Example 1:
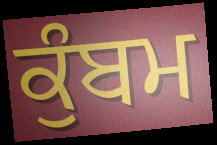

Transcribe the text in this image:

ਕੁੰਬਮ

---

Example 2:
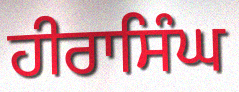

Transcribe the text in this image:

ਹੀਰਾਸਿੰਘ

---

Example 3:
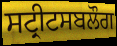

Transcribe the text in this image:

ਸਟ੍ਰੀਟਸਬਲੌਗ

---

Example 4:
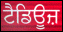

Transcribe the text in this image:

ਟੈਡਿਊਜ਼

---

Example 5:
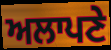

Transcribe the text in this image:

ਅਲਾਪਣੇ